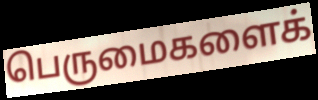
பெருமைகளைக்